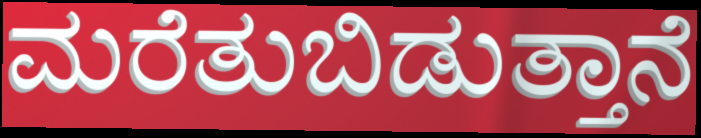
ಮರೆತುಬಿಡುತ್ತಾನೆ